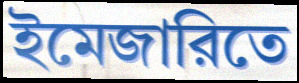
ইমেজারিতে